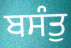
ਬਸੰਤੁ